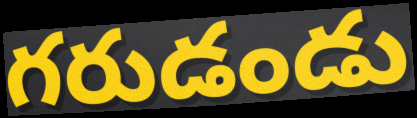
గరుడండు